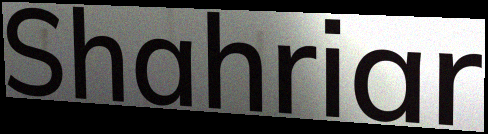
Shahriar